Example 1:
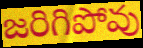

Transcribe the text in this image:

జరిగిపోవు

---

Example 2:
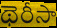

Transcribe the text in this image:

థెరీసా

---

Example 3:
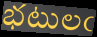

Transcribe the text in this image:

భటులఁ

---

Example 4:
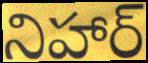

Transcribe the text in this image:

నిహార్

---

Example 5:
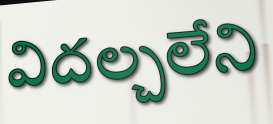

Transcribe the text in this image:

విదల్చలేని